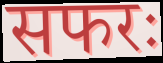
सफरः